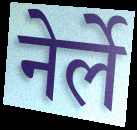
नेर्ले